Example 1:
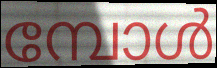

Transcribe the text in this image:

മ്പോൾ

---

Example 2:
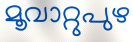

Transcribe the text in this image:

മൂവാറ്റുപുഴ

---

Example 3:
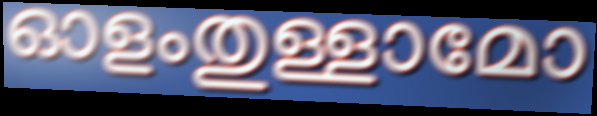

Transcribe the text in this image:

ഓളംതുള്ളാമോ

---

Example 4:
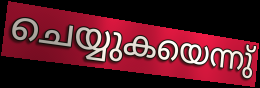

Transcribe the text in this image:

ചെയ്യുകയെന്നു്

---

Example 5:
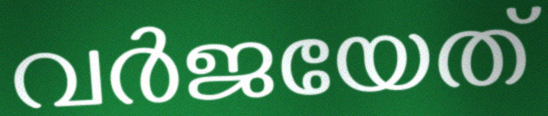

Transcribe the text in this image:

വർജയേത്